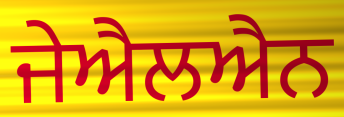
ਜੇਐਲਐਨ